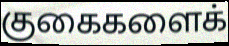
குகைகளைக்